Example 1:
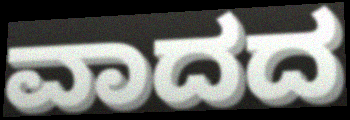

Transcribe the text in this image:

ವಾದದ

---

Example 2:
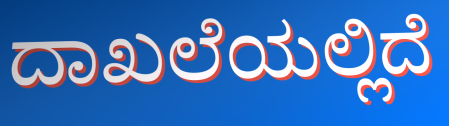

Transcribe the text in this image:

ದಾಖಲೆಯಲ್ಲಿದೆ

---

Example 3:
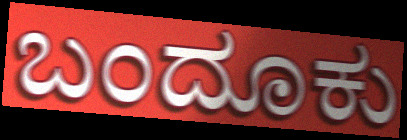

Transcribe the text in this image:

ಬಂದೂಕು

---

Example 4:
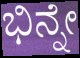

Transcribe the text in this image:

ಭಿನ್ನೇ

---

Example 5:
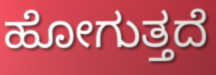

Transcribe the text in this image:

ಹೋಗುತ್ತದೆ